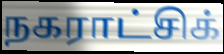
நகராட்சிக்